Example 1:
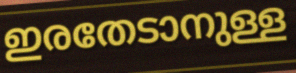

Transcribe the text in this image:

ഇരതേടാനുള്ള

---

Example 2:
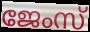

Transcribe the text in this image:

ജേംസ്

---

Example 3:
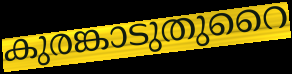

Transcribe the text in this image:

കുരങ്കാടുതുറൈ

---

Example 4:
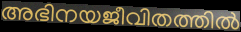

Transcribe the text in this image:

അഭിനയജീവിതത്തിൽ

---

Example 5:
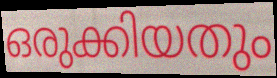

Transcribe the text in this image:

ഒരുക്കിയതും